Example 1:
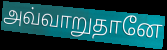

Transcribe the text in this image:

அவ்வாறுதானே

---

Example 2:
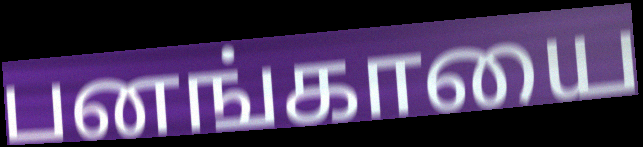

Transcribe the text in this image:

பனங்காயை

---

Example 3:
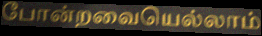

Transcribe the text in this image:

போன்றவையெல்லாம்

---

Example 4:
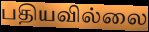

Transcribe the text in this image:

பதியவில்லை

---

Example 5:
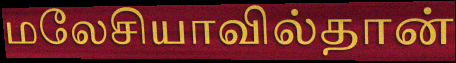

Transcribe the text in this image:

மலேசியாவில்தான்